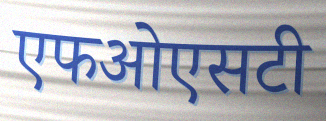
एफओएसटी